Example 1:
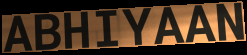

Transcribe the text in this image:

ABHIYAAN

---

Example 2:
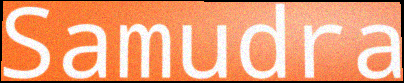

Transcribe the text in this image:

Samudra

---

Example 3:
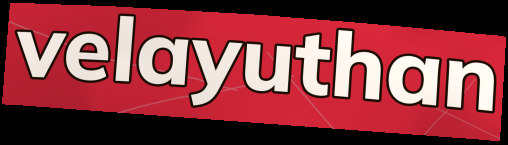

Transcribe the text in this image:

velayuthan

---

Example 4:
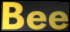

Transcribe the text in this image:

Bee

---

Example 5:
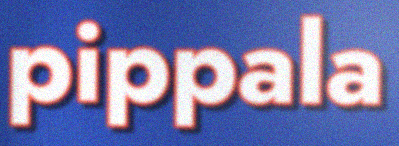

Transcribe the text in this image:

pippala